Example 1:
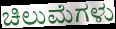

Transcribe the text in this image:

ಚಿಲುಮೆಗಳು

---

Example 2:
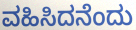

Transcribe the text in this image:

ವಹಿಸಿದನೆಂದು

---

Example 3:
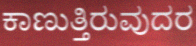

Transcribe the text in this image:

ಕಾಣುತ್ತಿರುವುದರ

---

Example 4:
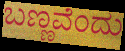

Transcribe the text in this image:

ಬಣ್ಣವೆಂದು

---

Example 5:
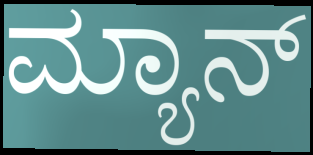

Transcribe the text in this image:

ಮ್ಯಾನ್